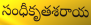
సంధీకృతశరాయ